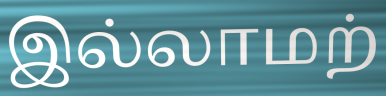
இல்லாமற்